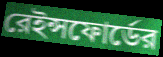
রেইন্সফোর্ডের